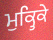
ਮੁਕ੍ਤਿਕੇ